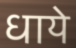
धाये